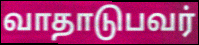
வாதாடுபவர்